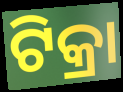
ଟିକ୍ରା